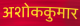
अशोककुमार